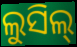
ଲୁସିଲ୍